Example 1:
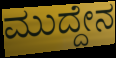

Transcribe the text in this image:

ಮುದ್ದೇನ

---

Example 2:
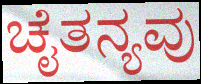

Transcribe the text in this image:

ಚೈತನ್ಯವು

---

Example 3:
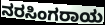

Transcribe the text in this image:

ನರಸಿಂಗರಾಯ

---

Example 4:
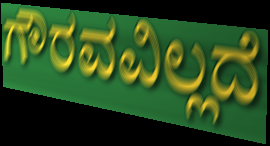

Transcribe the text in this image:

ಗೌರವವಿಲ್ಲದೆ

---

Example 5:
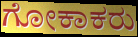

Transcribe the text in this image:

ಗೋಕಾಕರು